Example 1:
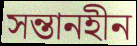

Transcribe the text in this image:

সন্তানহীন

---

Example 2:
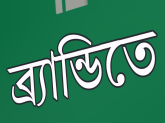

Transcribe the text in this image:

ব্র্যান্ডিতে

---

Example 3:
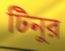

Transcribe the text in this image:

টিনুর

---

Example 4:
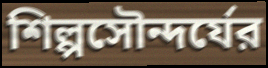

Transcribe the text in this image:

শিল্পসৌন্দর্যের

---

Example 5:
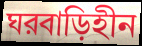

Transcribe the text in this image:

ঘরবাড়িহীন